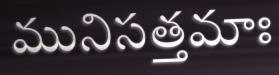
మునిసత్తమాః